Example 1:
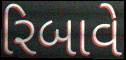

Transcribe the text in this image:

રિબાવે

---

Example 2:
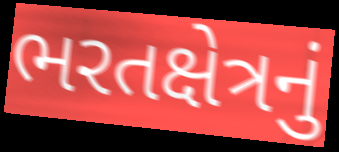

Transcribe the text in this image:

ભરતક્ષેત્રનું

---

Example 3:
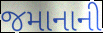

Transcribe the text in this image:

જમાનાની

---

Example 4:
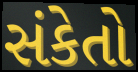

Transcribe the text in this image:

સંકેતો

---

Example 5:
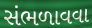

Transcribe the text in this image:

સંભળાવવા